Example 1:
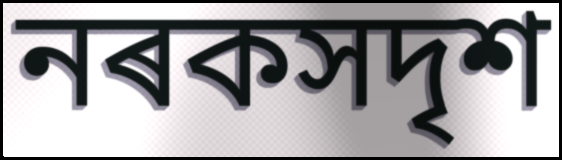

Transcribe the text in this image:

নৰকসদৃশ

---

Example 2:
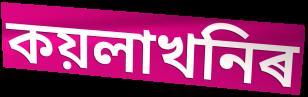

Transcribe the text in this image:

কয়লাখনিৰ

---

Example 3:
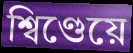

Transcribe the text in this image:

শ্বিণ্ডেয়ে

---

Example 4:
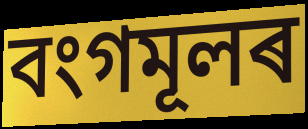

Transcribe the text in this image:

বংগমূলৰ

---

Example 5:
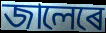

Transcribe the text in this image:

জালেৰে